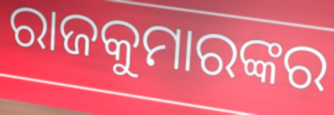
ରାଜକୁମାରଙ୍କର